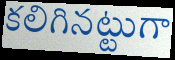
కలిగినట్టుగా